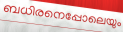
ബധിരനെപ്പോലെയും